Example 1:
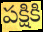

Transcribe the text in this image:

పక్షికి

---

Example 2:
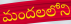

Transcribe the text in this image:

మందలలోని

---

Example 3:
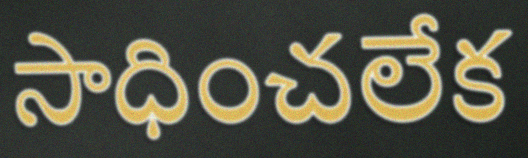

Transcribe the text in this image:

సాధించలేక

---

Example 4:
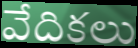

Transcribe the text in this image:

వేదికలు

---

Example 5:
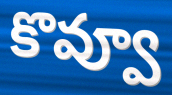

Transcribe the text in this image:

కొవ్వూ